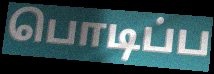
பொடிப்ப